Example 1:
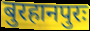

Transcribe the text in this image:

बुरहानपुरः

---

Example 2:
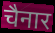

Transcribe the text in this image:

चैनार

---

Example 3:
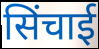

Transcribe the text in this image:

सिंचाई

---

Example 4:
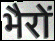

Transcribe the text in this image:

भैरों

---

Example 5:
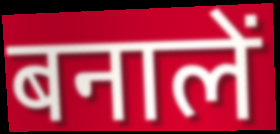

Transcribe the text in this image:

बनालें